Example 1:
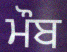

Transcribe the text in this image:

ਮੌਬ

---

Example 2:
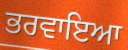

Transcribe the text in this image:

ਭਰਵਾਇਆ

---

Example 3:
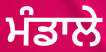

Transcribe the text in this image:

ਮੰਡਾਲੇ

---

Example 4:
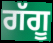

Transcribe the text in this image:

ਗੱਗੂ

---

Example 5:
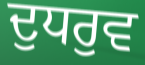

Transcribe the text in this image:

ਦੁਧਰੁਵ